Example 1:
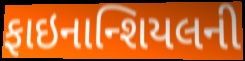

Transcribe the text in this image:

ફાઇનાન્શિયલની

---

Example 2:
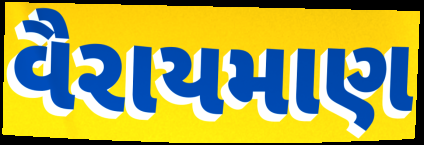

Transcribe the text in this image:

વૈરાયમાણ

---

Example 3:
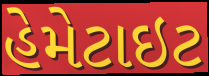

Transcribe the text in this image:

હેમેટાઇટ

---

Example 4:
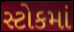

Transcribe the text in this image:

સ્ટોકમાં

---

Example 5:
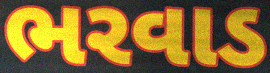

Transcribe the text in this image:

ભરવાડ